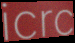
icrc